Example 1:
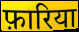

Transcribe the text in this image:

फ़ारिया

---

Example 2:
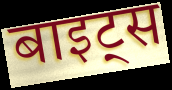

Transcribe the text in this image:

बाइट्स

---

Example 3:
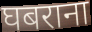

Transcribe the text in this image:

घबराना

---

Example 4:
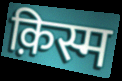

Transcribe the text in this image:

क़िस्म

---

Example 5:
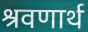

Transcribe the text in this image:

श्रवणार्थ